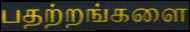
பதற்றங்களை